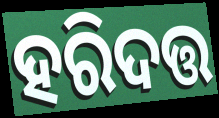
ହରିଦତ୍ତ